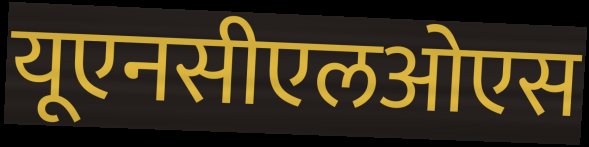
यूएनसीएलओएस